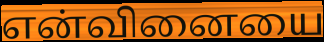
என்வினையை